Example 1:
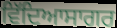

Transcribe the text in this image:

ਵਿੱਦਿਆਸਾਗਰ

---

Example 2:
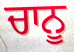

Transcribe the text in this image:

ਚਾਨੂ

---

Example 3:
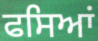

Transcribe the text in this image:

ਫਸਿਆਂ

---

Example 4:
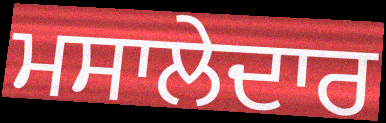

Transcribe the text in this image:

ਮਸਾਲੇਦਾਰ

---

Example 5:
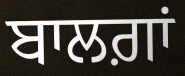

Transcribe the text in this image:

ਬਾਲਗ਼ਾਂ